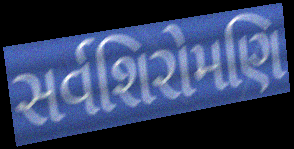
સર્વશિરોમણિ